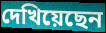
দেখিয়েছেন